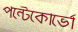
পন্টেকোর্ভো